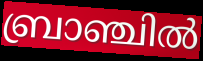
ബ്രാഞ്ചിൽ